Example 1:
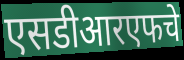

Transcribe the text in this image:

एसडीआरएफचे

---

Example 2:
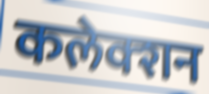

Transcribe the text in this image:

कलेक्शन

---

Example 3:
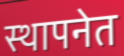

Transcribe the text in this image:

स्थापनेत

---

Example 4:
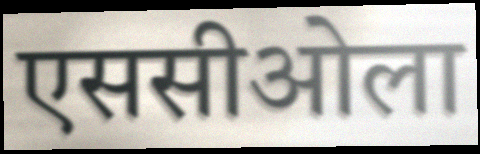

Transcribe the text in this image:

एससीओला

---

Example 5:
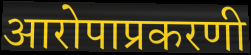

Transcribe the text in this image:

आरोपाप्रकरणी